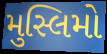
મુસ્લિમો